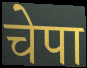
चेपा